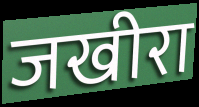
जखीरा